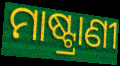
ମାଷ୍ଟ୍ରାଣୀ